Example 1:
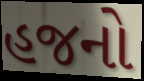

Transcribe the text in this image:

હજનો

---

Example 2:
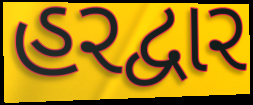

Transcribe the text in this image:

હરદ્વાર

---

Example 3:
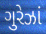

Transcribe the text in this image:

ગુરેઝાં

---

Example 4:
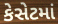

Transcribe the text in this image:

કેસેટમાં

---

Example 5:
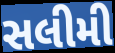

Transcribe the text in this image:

સલીમી